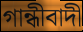
গান্ধীবাদী